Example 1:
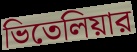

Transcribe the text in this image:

ভিতেলিয়ার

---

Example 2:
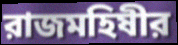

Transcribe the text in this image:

রাজমহিষীর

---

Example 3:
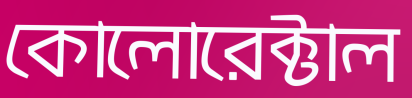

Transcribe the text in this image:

কোলোরেক্টাল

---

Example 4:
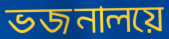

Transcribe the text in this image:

ভজনালয়ে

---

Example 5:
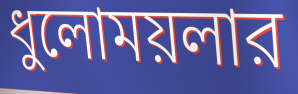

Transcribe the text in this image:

ধুলোময়লার